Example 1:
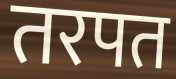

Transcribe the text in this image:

तरपत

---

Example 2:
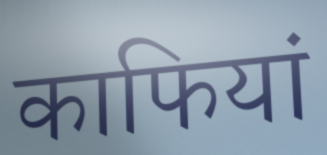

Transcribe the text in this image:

काफियां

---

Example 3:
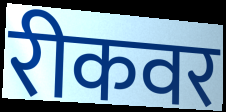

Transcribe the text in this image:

रीकवर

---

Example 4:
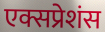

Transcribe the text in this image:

एक्सप्रेशंस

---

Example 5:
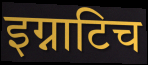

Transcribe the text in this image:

इग्नाटिच